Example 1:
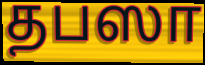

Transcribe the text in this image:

தபஸா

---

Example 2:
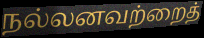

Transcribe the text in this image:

நல்லனவற்றைத்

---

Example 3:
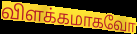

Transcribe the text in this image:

விளக்கமாகவோ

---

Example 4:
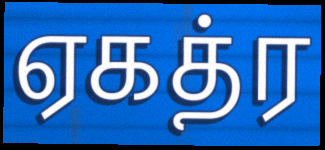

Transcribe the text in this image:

ஏகத்ர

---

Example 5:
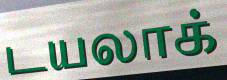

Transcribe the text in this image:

டயலாக்